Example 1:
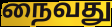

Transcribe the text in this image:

நைவது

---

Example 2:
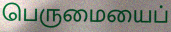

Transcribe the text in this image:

பெருமையைப்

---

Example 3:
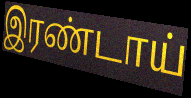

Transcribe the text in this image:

இரண்டாய்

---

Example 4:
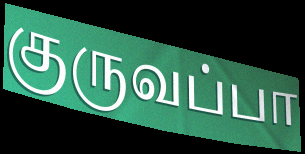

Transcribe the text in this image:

குருவப்பா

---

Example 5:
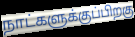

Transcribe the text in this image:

நாட்களுக்குப்பிறகு